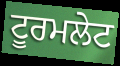
ਟੂਰਮਲੇਟ